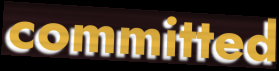
committed